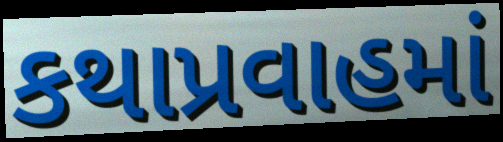
કથાપ્રવાહમાં